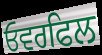
ਓਵਰਫਿਲ